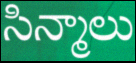
సిన్మాలు